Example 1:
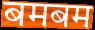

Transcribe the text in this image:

बमबम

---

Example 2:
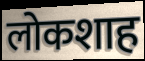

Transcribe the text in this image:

लोकशाह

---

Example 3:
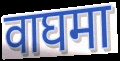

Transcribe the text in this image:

वाघमा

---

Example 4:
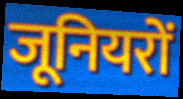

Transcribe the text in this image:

जूनियरों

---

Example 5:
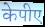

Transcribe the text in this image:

केपीए